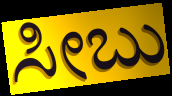
ಸೀಬು